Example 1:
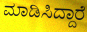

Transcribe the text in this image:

ಮಾಡಿಸಿದ್ದಾರೆ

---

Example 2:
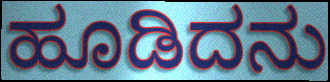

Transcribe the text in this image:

ಹೂಡಿದನು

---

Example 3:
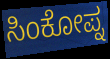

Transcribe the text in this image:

ಸಿಂಕೋಪ್ನ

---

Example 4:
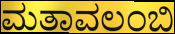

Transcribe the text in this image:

ಮತಾವಲಂಬಿ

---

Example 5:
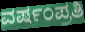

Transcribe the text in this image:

ವರ್ಷಂಪ್ರತಿ